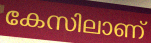
കേസിലാണ്